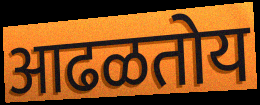
आढळतोय